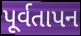
પૂર્વતાપન